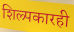
शिल्पकारही